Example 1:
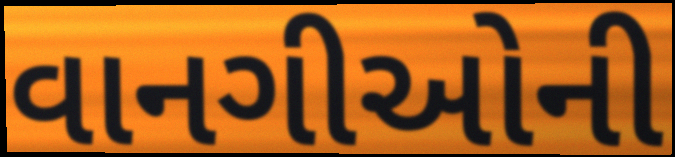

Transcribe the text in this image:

વાનગીઓની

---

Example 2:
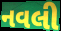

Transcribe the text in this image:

નવલી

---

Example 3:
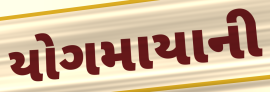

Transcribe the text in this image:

યોગમાયાની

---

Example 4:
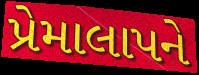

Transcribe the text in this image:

પ્રેમાલાપને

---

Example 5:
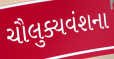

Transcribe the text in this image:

ચૌલુક્યવંશના